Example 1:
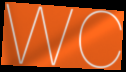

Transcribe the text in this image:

WC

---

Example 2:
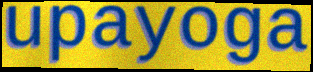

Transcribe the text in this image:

upayoga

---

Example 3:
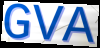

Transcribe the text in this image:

GVA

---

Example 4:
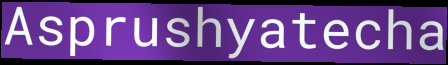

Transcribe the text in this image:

Asprushyatecha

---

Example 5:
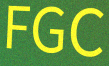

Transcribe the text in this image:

FGC